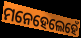
ମନେହେଲେହେଁ